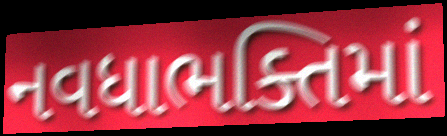
નવધાભક્તિમાં